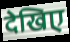
देखिए